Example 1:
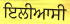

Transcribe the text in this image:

ਇਲੀਆਸੀ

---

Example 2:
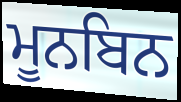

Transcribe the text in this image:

ਮੂਨਬਿਨ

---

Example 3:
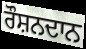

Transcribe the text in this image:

ਰੌਸ਼ਨਦਾਨ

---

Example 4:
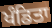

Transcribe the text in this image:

ਖੰਡਿਤਾ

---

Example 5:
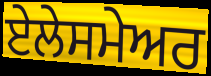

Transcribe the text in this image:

ਏਲੇਸਮੇਅਰ